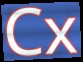
Cx